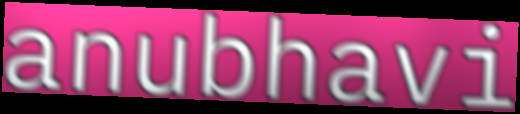
anubhavi